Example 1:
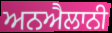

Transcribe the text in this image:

ਅਨਐਲਾਨੀ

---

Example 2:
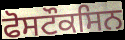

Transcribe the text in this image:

ਫੋਸਟੌਕਸਿਨ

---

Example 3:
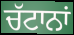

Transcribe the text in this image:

ਚੱਟਾਨਾਂ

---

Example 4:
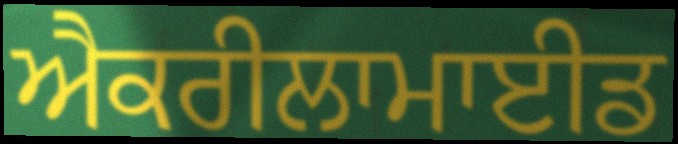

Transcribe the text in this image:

ਐਕਰੀਲਾਮਾਈਡ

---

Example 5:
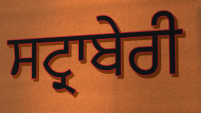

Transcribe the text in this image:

ਸਟ੍ਰਾਬੇਰੀ